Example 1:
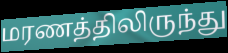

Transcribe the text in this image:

மரணத்திலிருந்து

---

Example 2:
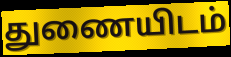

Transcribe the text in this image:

துணையிடம்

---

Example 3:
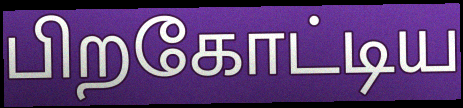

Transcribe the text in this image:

பிறகோட்டிய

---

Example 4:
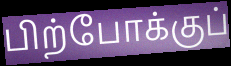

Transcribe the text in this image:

பிற்போக்குப்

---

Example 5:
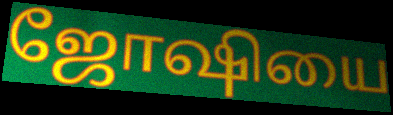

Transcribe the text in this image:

ஜோஷியை